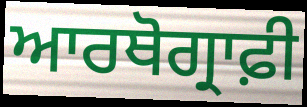
ਆਰਥੋਗ੍ਰਾਫ਼ੀ